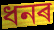
ধনৰ